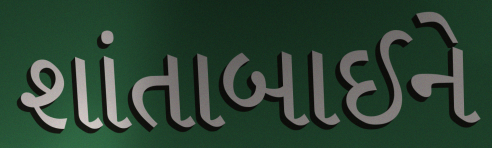
શાંતાબાઈને